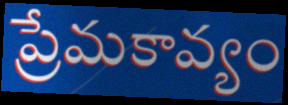
ప్రేమకావ్యం